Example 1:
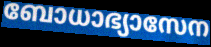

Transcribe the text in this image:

ബോധാഭ്യാസേന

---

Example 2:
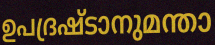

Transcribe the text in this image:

ഉപദ്രഷ്ടാനുമന്താ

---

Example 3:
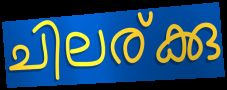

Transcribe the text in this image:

ചിലര്ക്കു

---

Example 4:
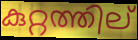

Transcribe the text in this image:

കുറ്റത്തില്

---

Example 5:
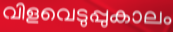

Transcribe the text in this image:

വിളവെടുപ്പുകാലം